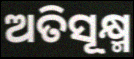
ଅତିସୂକ୍ଷ୍ମ